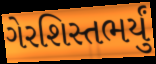
ગેરશિસ્તભર્યું